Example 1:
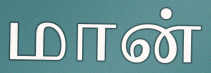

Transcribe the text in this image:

மான்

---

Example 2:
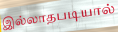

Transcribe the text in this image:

இல்லாதபடியால்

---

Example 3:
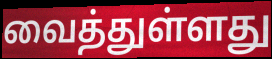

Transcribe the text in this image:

வைத்துள்ளது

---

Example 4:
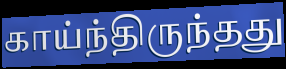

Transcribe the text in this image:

காய்ந்திருந்தது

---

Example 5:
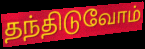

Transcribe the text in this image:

தந்திடுவோம்